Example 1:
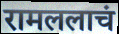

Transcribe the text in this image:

रामललाचं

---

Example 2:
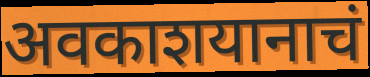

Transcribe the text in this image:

अवकाशयानाचं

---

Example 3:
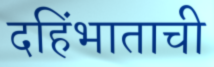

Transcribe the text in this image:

दहिंभाताची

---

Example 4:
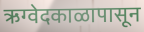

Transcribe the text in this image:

ऋग्वेदकाळापासून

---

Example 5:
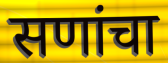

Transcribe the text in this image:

सणांचा